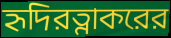
হৃদিরত্নাকরের